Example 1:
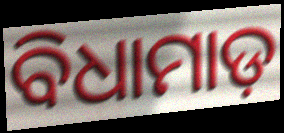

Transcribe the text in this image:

ବିଧାମାଡ଼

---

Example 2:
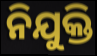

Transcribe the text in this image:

ନିଯୁକ୍ତି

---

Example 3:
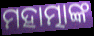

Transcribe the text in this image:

ମହାତ୍ମାଙ୍କ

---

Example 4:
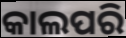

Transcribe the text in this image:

କାଲପରି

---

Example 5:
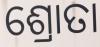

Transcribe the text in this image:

ଶ୍ରୋତା